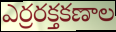
ఎర్రరక్తకణాల